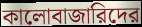
কালোবাজারিদের